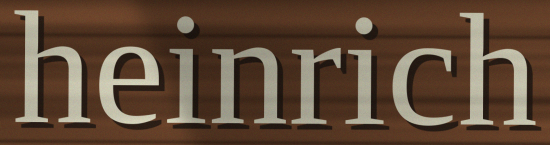
heinrich